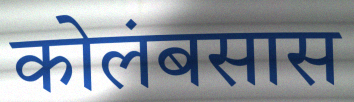
कोलंबसास